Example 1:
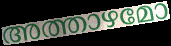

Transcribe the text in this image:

അത്താഴമോ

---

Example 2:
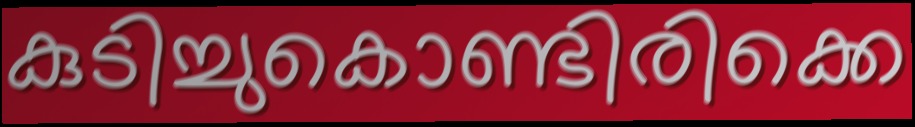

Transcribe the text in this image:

കുടിച്ചുകൊണ്ടിരിക്കെ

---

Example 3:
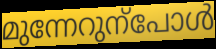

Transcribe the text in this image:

മുന്നേറുന്പോൾ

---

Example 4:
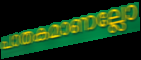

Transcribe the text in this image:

പാതകമാണല്ലോ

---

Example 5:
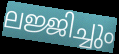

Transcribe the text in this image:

ലജ്ജിച്ചും